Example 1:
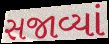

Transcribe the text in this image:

સજાવ્યાં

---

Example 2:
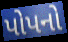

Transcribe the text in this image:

પોપનો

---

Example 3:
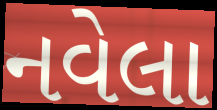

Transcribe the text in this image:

નવેલા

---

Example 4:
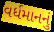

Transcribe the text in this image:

વર્ધમાનનું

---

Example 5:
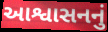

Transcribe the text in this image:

આશ્વાસનનું